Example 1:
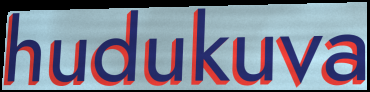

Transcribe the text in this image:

hudukuva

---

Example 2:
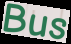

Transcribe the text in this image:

Bus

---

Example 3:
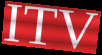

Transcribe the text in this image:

ITV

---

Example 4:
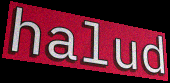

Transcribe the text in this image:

halud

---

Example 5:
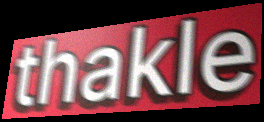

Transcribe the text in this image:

thakle